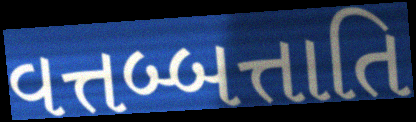
વત્તબ્બત્તાતિ